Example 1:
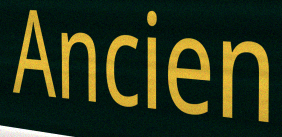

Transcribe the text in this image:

Ancien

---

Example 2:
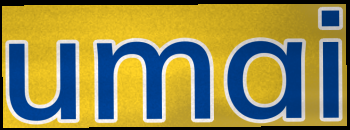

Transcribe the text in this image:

umai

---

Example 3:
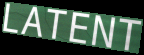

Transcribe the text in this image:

LATENT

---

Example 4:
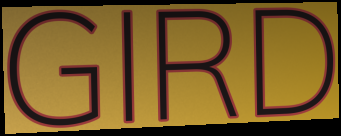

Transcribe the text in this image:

GIRD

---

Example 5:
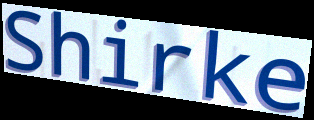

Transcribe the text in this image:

Shirke